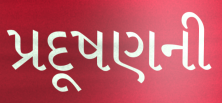
પ્રદૂષણની